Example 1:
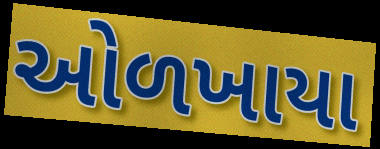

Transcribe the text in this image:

ઓળખાયા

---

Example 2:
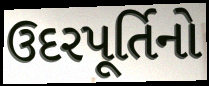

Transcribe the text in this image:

ઉદરપૂર્તિનો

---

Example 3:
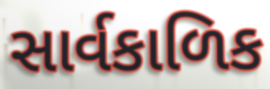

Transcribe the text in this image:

સાર્વકાળિક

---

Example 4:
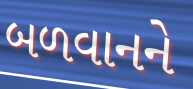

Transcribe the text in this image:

બળવાનને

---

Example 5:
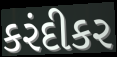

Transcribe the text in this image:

કરંદીકર